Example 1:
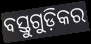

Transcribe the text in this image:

ବସ୍ତୁଗୁଡ଼ିକର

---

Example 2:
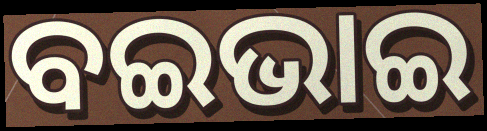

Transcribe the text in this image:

ବଇଭାଇ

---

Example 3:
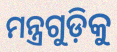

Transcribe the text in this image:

ମନ୍ତ୍ରଗୁଡ଼ିକୁ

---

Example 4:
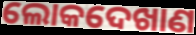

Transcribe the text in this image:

ଲୋକଦେଖାଣ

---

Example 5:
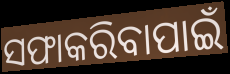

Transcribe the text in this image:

ସଫାକରିବାପାଇଁ